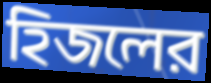
হিজলের